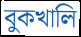
বুকখালি